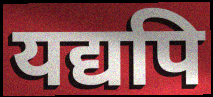
यद्यपि